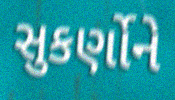
સુકર્ણોને